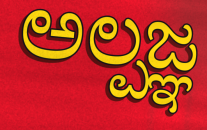
ಅಲ್ಪಜ್ಞ